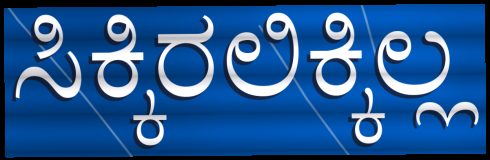
ಸಿಕ್ಕಿರಲಿಕ್ಕಿಲ್ಲ